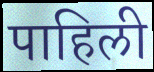
पाहिली